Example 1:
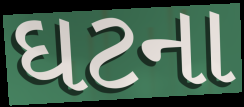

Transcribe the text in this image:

ઘટના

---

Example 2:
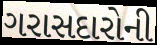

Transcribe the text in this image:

ગરાસદારોની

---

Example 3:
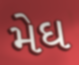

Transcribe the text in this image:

મેઘ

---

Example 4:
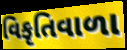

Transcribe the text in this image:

વિકૃતિવાળા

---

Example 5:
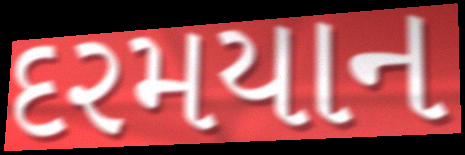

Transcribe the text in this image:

દરમયાન